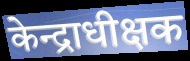
केन्द्राधीक्षक